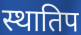
स्थातिप